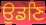
ਉਡਣਿ